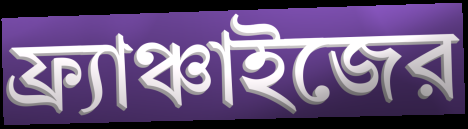
ফ্র্যাঞ্চাইজের